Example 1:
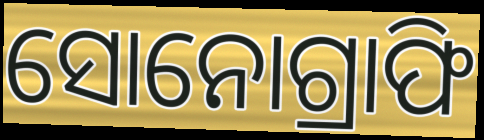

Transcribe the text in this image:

ସୋନୋଗ୍ରାଫି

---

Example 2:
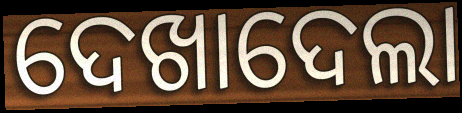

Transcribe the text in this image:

ଦେଖାଦେଲା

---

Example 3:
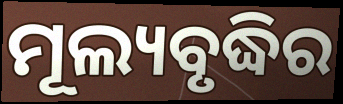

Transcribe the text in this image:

ମୂଲ୍ୟବୃଦ୍ଧିର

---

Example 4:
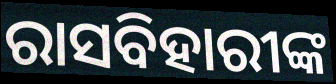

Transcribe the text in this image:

ରାସବିହାରୀଙ୍କ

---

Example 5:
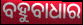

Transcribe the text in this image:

ବହୁବାଧାର